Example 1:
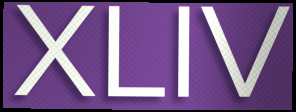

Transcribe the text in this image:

XLIV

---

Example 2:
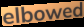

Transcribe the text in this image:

elbowed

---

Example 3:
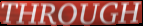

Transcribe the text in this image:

THROUGH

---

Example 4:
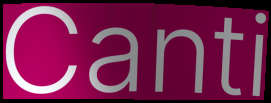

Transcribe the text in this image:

Canti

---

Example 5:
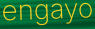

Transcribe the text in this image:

engayo